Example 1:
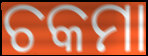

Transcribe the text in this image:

ଚକମା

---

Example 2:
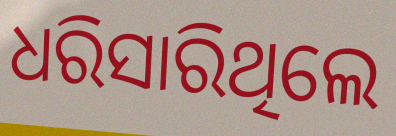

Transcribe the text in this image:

ଧରିସାରିଥିଲେ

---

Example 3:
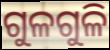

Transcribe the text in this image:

ଗୁଳଗୁଳି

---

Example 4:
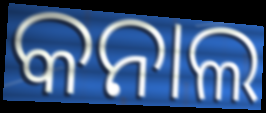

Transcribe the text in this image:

କନାଲ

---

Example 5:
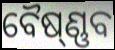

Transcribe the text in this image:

ବୈଷ୍ଣ୍ଣବ